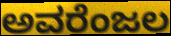
ಅವರೆಂಜಲ